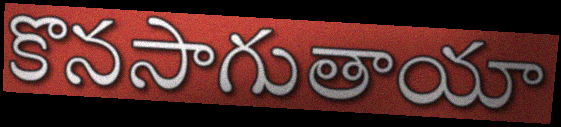
కొనసాగుతాయా